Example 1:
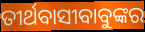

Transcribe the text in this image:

ତୀର୍ଥବାସୀବାବୁଙ୍କର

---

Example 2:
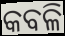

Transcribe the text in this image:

କବଳି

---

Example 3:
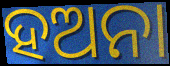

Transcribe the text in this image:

ହଅନା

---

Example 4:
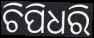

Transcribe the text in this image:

ଚିପିଧରି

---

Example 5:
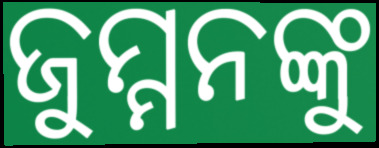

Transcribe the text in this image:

ଜୁମ୍ମନଙ୍କୁ